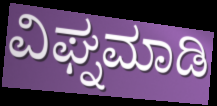
ವಿಘ್ನಮಾಡಿ